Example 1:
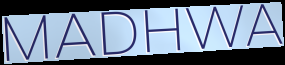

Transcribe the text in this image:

MADHWA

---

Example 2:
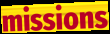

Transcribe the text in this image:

missions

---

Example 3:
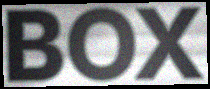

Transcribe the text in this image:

BOX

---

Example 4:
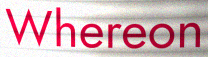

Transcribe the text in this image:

Whereon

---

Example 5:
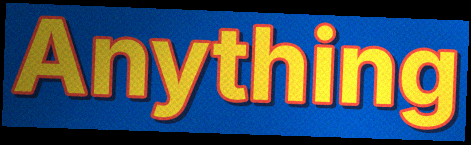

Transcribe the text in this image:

Anything